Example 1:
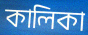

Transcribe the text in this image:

কালিকা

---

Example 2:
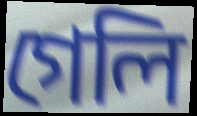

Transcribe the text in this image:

গেলি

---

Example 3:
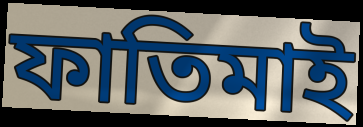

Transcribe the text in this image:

ফাতিমাই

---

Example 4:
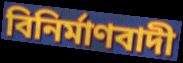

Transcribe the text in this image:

বিনিৰ্মাণবাদী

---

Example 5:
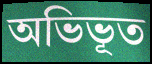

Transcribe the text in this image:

অভিভূত